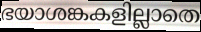
ഭയാശങ്കകളില്ലാതെ